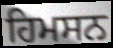
ਹਿਮਸਨ